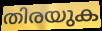
തിരയുക